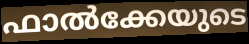
ഫാൽക്കേയുടെ